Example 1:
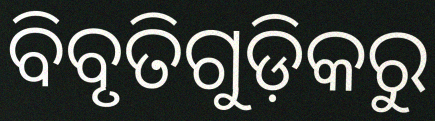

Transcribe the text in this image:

ବିବୃତିଗୁଡ଼ିକରୁ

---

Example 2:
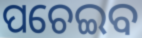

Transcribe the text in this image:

ପଚେଇବ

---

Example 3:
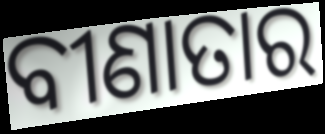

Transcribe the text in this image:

ବୀଣାତାର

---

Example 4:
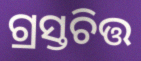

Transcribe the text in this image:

ଗ୍ରସ୍ତଚିତ୍ତ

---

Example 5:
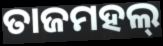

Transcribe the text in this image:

ତାଜମହଲ୍